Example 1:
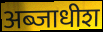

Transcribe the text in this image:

अब्जाधीश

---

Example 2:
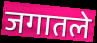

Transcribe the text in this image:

जगातले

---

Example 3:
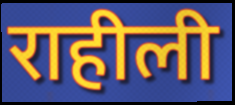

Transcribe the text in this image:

राहीली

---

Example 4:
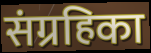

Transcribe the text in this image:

संग्रहिका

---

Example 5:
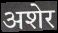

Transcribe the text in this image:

अशेर